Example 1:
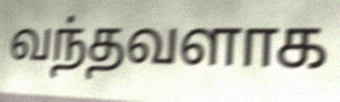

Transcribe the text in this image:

வந்தவளாக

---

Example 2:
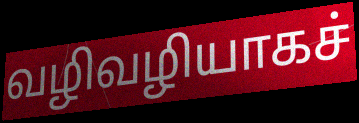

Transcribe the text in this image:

வழிவழியாகச்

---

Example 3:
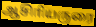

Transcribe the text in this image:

ஆசிரியருரை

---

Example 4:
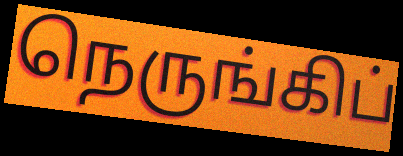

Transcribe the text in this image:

நெருங்கிப்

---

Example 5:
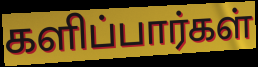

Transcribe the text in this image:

களிப்பார்கள்